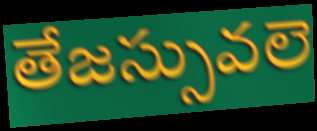
తేజస్సువలె